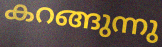
കറങ്ങുന്നു